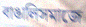
বাঙালিসমাজে